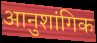
आनुशांगिक